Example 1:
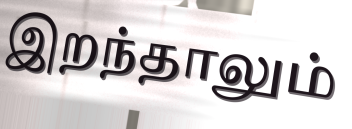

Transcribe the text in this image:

இறந்தாலும்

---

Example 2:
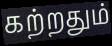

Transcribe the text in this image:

கற்றதும்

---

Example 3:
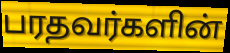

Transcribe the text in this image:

பரதவர்களின்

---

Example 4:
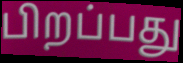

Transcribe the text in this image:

பிறப்பது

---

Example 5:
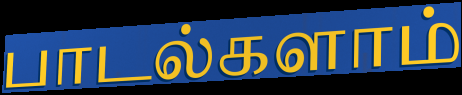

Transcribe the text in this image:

பாடல்களாம்